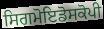
ਸਿਗਮੋਇਡੋਸਕੋਪੀ